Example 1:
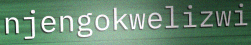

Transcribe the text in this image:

njengokwelizwi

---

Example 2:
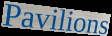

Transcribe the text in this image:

Pavilions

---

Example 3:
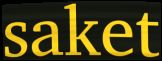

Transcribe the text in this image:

saket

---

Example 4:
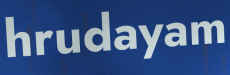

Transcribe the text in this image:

hrudayam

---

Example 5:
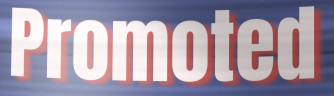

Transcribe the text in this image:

Promoted